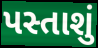
પસ્તાશું